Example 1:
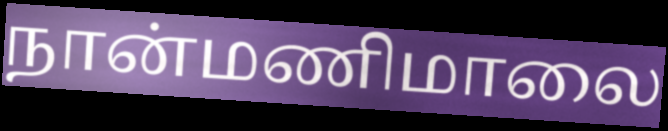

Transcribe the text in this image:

நான்மணிமாலை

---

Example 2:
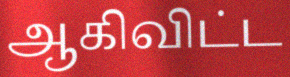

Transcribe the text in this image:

ஆகிவிட்ட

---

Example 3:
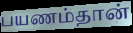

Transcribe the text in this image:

பயணம்தான்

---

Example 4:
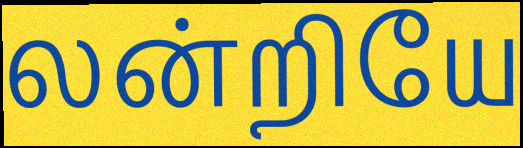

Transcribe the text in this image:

லன்றியே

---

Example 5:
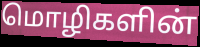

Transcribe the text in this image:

மொழிகளின்